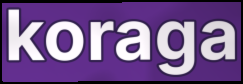
koraga